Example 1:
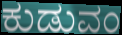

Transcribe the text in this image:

ಕುಡುವಂ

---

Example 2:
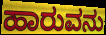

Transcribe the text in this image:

ಹಾರುವನು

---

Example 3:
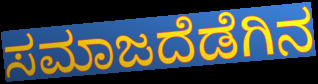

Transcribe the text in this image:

ಸಮಾಜದೆಡೆಗಿನ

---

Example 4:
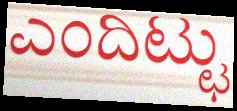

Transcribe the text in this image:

ಎಂದಿಟ್ಟು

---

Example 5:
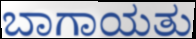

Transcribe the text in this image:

ಬಾಗಾಯತು